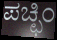
ಪಚ್ಛಿಂ